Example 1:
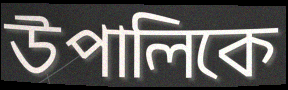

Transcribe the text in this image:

উপালিকে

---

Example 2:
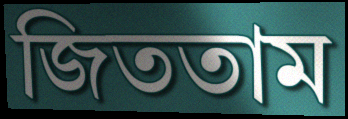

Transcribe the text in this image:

জিততাম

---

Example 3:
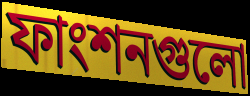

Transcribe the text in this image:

ফাংশনগুলো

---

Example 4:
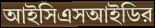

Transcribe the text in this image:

আইসিএসআইডির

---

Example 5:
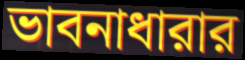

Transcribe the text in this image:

ভাবনাধারার